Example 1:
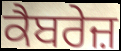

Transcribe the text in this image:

ਕੈਬਰੇਜ਼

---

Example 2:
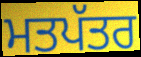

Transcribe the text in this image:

ਮਤਪੱਤਰ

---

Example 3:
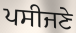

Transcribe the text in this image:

ਪਸੀਜਣੇ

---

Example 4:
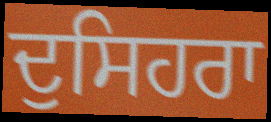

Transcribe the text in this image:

ਦੁਸਿਹਰਾ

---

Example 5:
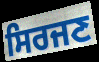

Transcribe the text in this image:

ਸਿਰਜਣ